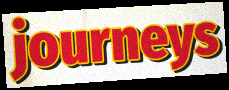
journeys